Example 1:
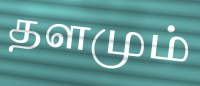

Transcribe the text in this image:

தளமும்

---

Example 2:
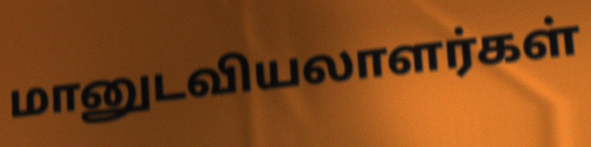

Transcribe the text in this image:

மானுடவியலாளர்கள்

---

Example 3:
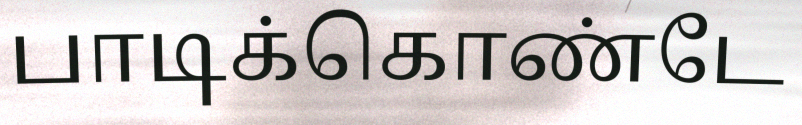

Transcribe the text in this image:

பாடிக்கொண்டே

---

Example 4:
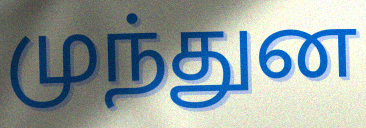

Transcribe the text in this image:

முந்துன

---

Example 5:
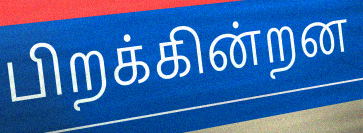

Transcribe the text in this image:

பிறக்கின்றன